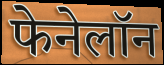
फेनेलॉन